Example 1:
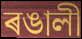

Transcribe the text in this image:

ৰঙালী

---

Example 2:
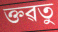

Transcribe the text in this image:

ক্তৱতু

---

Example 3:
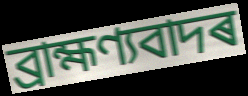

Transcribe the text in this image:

ব্ৰাহ্মণ্যবাদৰ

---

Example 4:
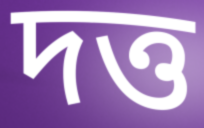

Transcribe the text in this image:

দত্ত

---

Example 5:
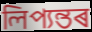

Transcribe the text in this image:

লিপ্যন্তৰ